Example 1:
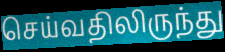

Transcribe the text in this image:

செய்வதிலிருந்து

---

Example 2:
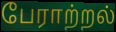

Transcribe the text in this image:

பேராற்றல்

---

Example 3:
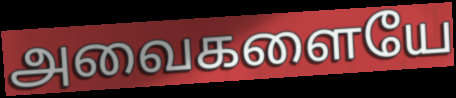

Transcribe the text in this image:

அவைகளையே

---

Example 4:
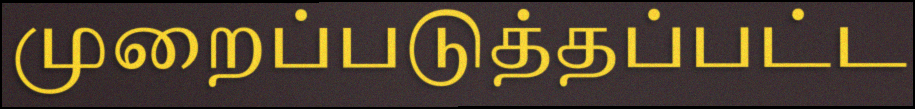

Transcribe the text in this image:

முறைப்படுத்தப்பட்ட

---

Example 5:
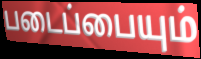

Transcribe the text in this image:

படைப்பையும்